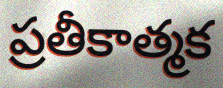
ప్రతీకాత్మక